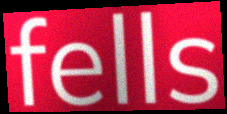
fells